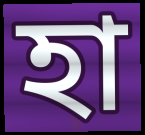
হা